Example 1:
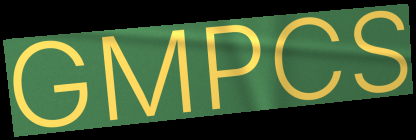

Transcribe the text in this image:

GMPCS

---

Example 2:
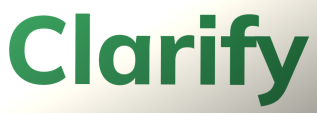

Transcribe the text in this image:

Clarify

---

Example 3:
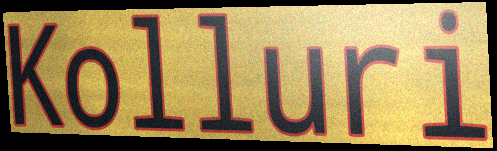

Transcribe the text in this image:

Kolluri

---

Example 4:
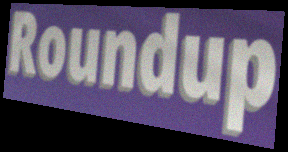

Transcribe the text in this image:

Roundup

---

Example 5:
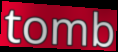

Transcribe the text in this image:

tomb